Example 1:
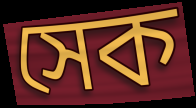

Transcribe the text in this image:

সেক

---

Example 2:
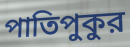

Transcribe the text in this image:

পাতিপুকুর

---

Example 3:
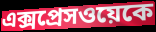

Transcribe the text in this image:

এক্সপ্রেসওয়েকে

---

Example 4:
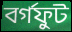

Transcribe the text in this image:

বর্গফুট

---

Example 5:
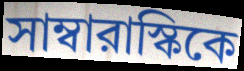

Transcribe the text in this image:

সাম্বারাস্কিকে